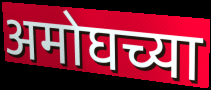
अमोघच्या